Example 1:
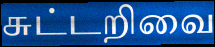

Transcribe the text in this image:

சுட்டறிவை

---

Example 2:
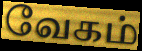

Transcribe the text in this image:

வேகம்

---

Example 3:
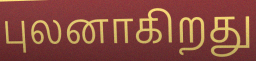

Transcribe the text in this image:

புலனாகிறது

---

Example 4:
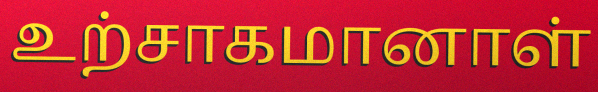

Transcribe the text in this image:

உற்சாகமானாள்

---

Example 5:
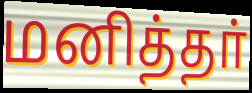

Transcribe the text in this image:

மனித்தர்